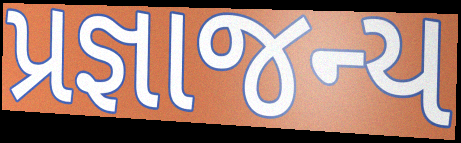
પ્રજ્ઞાજન્ય